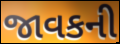
જાવકની